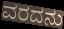
ವರದನು